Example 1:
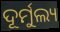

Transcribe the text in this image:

ଦୂର୍ମୁଲ୍ୟ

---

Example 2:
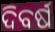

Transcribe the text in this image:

ଦିବର୍ଷ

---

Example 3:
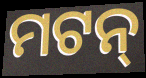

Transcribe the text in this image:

ମଟନ୍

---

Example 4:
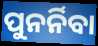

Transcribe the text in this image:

ପୁନର୍ନିବା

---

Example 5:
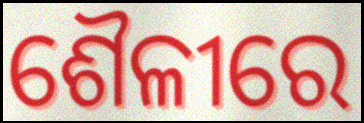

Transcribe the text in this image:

ଶୈଳୀରେ